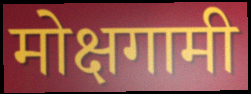
मोक्षगामी